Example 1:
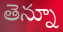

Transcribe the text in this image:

తెన్నూ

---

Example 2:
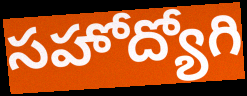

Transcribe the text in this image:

సహోద్యోగి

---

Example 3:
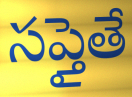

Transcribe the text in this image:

సప్తైతే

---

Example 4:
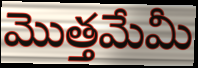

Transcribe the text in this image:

మొత్తమేమీ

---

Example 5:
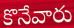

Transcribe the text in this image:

కొనేవారు